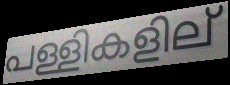
പള്ളികളില്